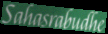
Sahasrabudhe